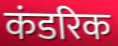
कंडरिक